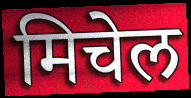
मिचेल